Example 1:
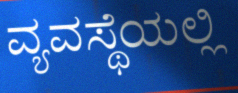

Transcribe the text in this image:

ವ್ಯವಸ್ಥೆಯಲ್ಲಿ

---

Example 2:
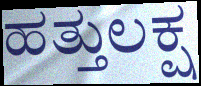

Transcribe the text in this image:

ಹತ್ತುಲಕ್ಷ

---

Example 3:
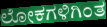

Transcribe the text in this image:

ಲೋಕಗಳಿಗಿಂತ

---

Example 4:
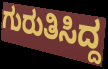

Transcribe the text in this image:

ಗುರುತಿಸಿದ್ದ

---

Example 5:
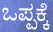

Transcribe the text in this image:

ಒಪ್ಪಕ್ಕೆ